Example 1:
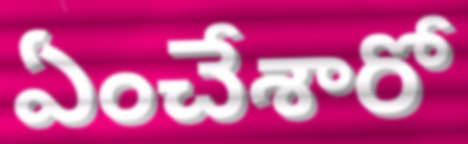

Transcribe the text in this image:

ఏంచేశారో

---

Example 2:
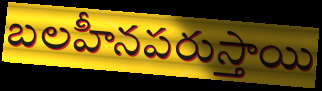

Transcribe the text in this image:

బలహీనపరుస్తాయి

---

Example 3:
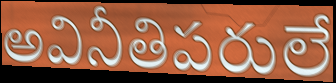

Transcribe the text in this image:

అవినీతిపరులే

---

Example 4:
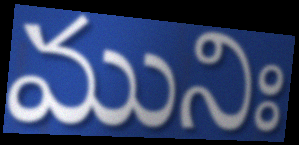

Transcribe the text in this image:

మునిః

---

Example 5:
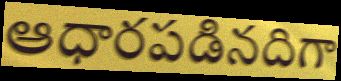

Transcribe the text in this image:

ఆధారపడినదిగా